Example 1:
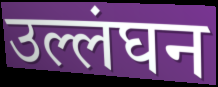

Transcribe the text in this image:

उल्लंघन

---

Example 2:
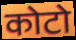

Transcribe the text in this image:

कोटो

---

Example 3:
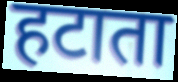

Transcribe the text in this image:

हटाता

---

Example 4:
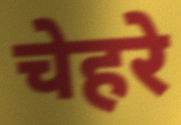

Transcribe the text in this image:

चेहरे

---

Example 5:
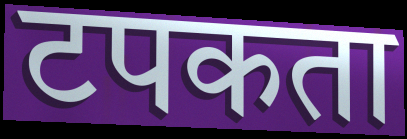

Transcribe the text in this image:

टपकता